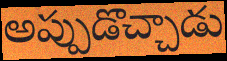
అప్పుడొచ్చాడు